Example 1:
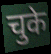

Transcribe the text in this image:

चुके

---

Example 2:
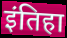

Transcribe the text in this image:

इंतिहा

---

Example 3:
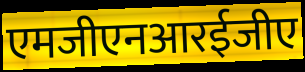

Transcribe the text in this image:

एमजीएनआरईजीए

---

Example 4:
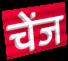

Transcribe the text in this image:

चेंज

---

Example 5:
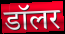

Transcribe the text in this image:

डॉलर